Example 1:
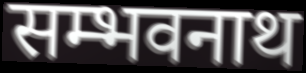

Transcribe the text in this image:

सम्भवनाथ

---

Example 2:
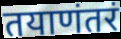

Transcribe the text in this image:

तयाणंतरं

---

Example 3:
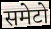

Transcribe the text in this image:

समेटो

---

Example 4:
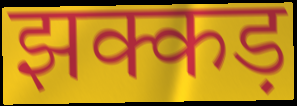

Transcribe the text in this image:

झक्कड़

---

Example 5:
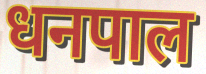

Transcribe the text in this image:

धनपाल